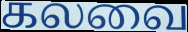
கலவை